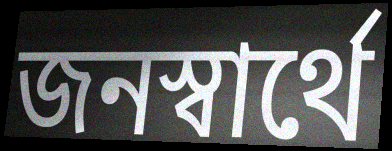
জনস্বার্থে